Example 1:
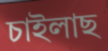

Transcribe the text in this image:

চাইলাছ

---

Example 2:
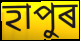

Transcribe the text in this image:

হাপুৰ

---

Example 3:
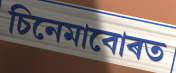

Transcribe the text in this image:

চিনেমাবোৰত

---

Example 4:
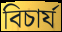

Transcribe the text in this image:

বিচাৰ্য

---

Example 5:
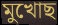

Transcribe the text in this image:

মুখোছ